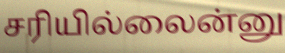
சரியில்லைன்னு